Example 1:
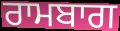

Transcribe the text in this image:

ਰਾਮਬਾਗ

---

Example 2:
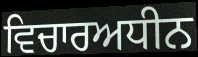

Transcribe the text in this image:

ਵਿਚਾਰਅਧੀਨ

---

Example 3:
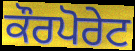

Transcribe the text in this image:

ਕੌਰਪੋਰੇਟ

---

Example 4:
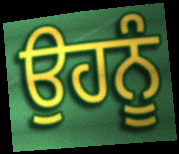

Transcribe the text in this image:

ਉਹਨੂੰ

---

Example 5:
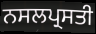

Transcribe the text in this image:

ਨਸਲਪ੍ਰਸਤੀ